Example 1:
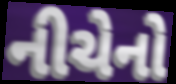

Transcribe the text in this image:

નીચેનો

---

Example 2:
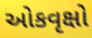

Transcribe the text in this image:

ઓકવૃક્ષો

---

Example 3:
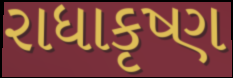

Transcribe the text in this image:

રાધાકૃષ્ણ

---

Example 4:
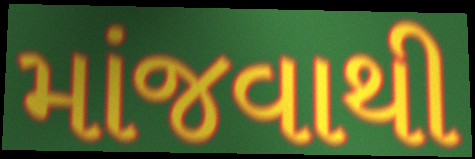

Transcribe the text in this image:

માંજવાથી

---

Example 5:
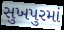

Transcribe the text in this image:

સુખપુરમાં